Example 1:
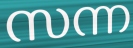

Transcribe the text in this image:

സന്ന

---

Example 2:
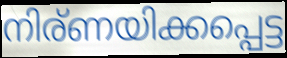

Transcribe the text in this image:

നിര്ണയിക്കപ്പെട്ട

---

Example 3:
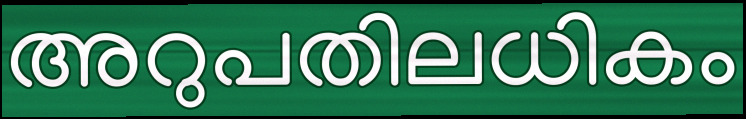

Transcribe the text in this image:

അറുപതിലധികം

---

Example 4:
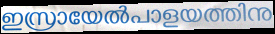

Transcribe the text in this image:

ഇസ്രായേൽപാളയത്തിനു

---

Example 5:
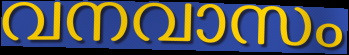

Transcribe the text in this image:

വനവാസം